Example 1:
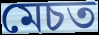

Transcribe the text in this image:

মেচত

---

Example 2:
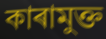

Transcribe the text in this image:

কাৰামুক্ত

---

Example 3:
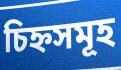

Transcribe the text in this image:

চিহ্নসমূহ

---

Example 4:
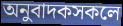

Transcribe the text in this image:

অনুবাদকসকলে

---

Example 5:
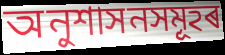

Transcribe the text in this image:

অনুশাসনসমূহৰ